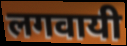
लगवायी